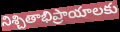
నిశ్చితాభిప్రాయాలకు